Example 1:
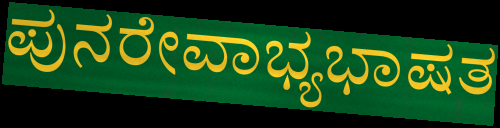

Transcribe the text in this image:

ಪುನರೇವಾಭ್ಯಭಾಷತ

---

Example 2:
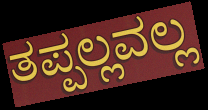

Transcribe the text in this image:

ತಪ್ಪಲ್ಲವಲ್ಲ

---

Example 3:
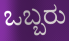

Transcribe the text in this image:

ಒಬ್ಬರು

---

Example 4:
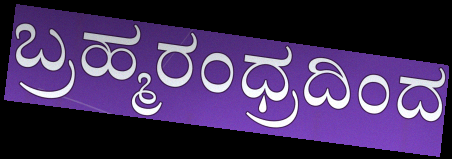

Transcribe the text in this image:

ಬ್ರಹ್ಮರಂಧ್ರದಿಂದ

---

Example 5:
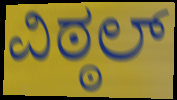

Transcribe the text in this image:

ವಿಠ್ಠಲ್